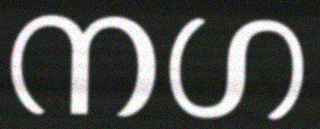
നഗ